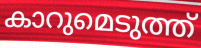
കാറുമെടുത്ത്